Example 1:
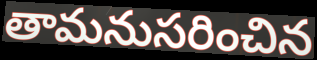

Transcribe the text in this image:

తామనుసరించిన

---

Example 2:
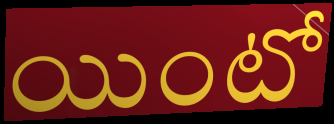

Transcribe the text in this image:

యింటో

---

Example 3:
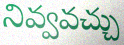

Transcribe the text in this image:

నివ్వవచ్చు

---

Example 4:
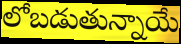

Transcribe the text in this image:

లోబడుతున్నాయే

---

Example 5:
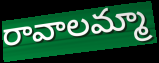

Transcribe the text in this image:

రావాలమ్మా